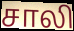
சாலி